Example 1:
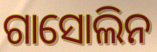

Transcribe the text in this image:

ଗାସୋଲିନ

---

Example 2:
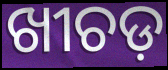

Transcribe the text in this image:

ଖୀଚଡ଼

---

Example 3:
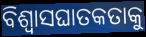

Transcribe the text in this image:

ବିଶ୍ୱାସଘାତକତାକୁ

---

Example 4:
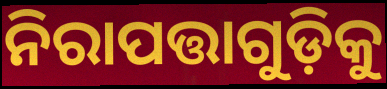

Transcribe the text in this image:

ନିରାପତ୍ତାଗୁଡ଼ିକୁ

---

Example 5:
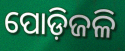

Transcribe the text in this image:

ପୋଡ଼ିଜଳି